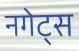
नगेट्स